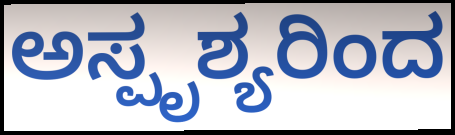
ಅಸ್ಪೃಶ್ಯರಿಂದ